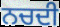
ਨਚਦੀ